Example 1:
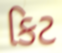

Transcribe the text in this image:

કિટ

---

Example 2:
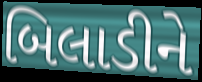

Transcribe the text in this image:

બિલાડીને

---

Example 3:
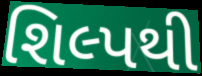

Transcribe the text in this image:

શિલ્પથી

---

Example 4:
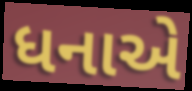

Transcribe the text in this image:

ધનાએ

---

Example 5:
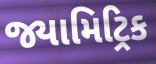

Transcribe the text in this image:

જ્યામિટ્રિક